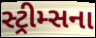
સ્ટ્રીમ્સના